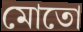
মোতো